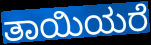
ತಾಯಿಯರೆ